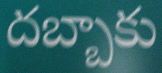
దబ్బాకు